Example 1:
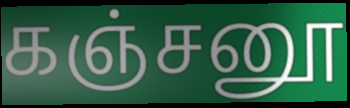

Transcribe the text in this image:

கஞ்சனூ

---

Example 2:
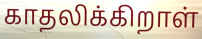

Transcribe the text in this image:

காதலிக்கிறாள்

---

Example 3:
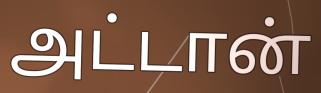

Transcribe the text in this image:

அட்டான்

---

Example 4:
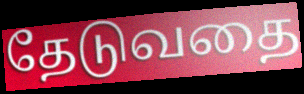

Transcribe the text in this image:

தேடுவதை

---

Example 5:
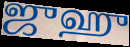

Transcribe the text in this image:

ஜுஹு